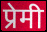
प्रेमी